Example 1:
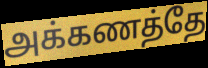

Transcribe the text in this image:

அக்கணத்தே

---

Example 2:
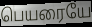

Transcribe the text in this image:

பெயரையே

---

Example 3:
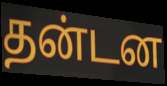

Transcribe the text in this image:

தன்டன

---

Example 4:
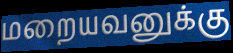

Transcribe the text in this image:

மறையவனுக்கு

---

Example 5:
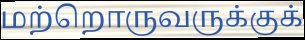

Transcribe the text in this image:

மற்றொருவருக்குக்